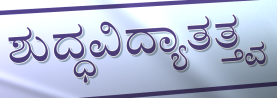
ಶುದ್ಧವಿದ್ಯಾತತ್ತ್ವ